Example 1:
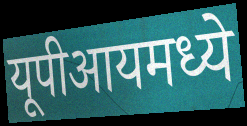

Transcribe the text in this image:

यूपीआयमध्ये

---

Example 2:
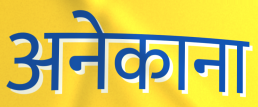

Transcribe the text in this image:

अनेकाना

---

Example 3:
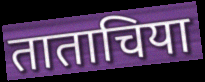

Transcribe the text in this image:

ताताचिया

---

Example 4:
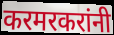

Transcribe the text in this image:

करमरकरांनी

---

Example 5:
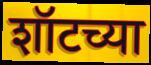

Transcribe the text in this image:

शॉटच्या